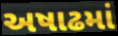
અષાઢમાં